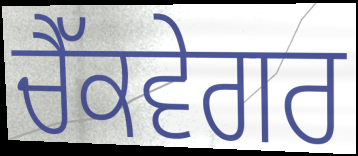
ਚੈੱਕਵੇਗਰ